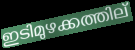
ഇടിമുഴക്കത്തില്